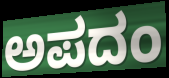
ಅಪದಂ